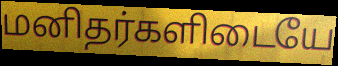
மனிதர்களிடையே